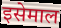
इसेमाल